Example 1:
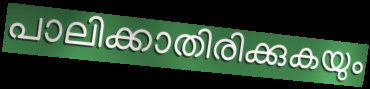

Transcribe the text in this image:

പാലിക്കാതിരിക്കുകയും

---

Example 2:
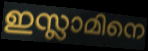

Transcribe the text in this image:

ഇസ്ലാമിനെ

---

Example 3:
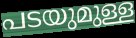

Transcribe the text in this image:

പടയുമുള്ള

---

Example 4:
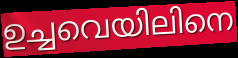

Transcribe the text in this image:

ഉച്ചവെയിലിനെ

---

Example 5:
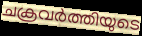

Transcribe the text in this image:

ചക്രവർത്തിയുടെ